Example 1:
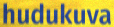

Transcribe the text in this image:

hudukuva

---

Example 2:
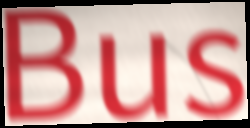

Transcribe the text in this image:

Bus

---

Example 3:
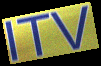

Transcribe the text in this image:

ITV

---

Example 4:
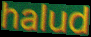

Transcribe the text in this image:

halud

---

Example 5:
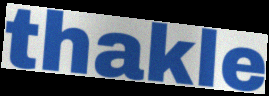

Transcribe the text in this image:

thakle